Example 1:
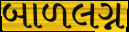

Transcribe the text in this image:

બાળલગ્ન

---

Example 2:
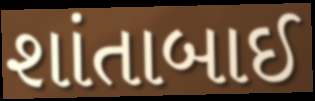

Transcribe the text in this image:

શાંતાબાઈ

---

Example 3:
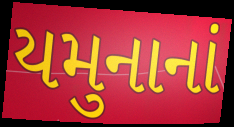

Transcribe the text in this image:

યમુનાનાં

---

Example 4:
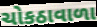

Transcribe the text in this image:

ચોકઠાવાળા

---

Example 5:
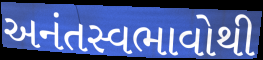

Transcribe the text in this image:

અનંતસ્વભાવોથી